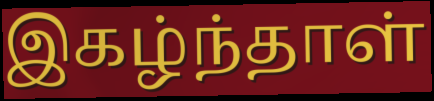
இகழ்ந்தாள்